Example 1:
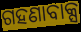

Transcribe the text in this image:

ଗହଣାବାକ୍ସ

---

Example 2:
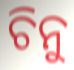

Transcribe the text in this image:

ଚିନୁ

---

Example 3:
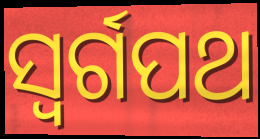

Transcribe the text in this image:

ସ୍ୱର୍ଗପଥ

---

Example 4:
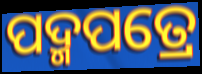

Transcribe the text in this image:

ପଦ୍ମପତ୍ରେ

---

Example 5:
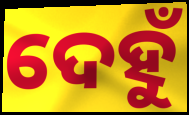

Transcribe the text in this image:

ଦେହୁଁ